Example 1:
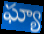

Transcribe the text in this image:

ఘ్యా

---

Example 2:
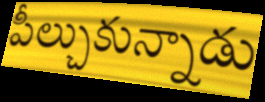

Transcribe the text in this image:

పీల్చుకున్నాడు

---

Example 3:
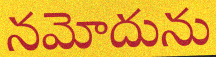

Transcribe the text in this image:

నమోదును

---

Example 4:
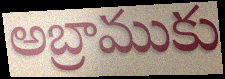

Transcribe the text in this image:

అబ్రాముకు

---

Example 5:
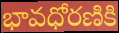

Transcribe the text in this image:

భావధోరణికి